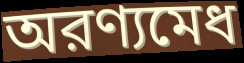
অরণ্যমেধ